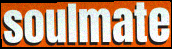
soulmate